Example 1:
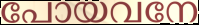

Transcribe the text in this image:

പോയവനേ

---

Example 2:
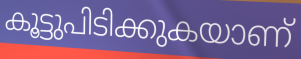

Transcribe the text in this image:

കൂട്ടുപിടിക്കുകയാണ്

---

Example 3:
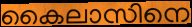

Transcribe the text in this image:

കൈലാസിനെ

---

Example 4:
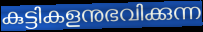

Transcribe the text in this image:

കുട്ടികളനുഭവിക്കുന്ന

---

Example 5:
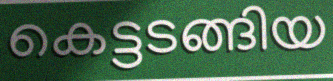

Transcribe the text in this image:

കെട്ടടങ്ങിയ